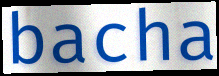
bacha